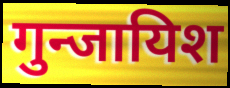
गुन्जायिश